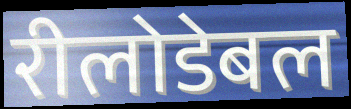
रीलोडेबल